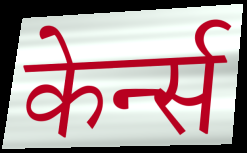
केर्न्स